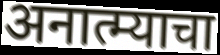
अनात्म्याचा